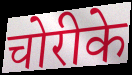
चोरीके